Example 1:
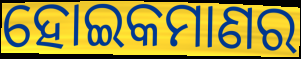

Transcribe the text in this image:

ହୋଇକମାଣର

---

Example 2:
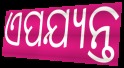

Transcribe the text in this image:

ଏପଯ୍ୟନ୍ତ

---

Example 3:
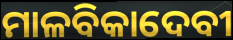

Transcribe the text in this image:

ମାଳବିକାଦେବୀ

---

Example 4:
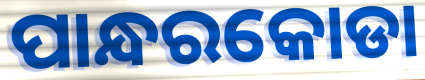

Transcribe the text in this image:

ପାନ୍ଧରକୋଡା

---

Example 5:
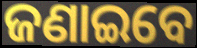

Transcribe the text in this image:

ଜଣାଇବେ